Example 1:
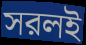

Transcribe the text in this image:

সরলই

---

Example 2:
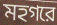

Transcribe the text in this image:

মহগরে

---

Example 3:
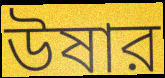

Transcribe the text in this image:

উষার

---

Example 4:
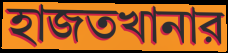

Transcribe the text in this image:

হাজতখানার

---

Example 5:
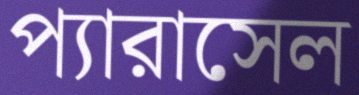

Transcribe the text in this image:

প্যারাসেল